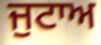
ਜੁਟਾਅ